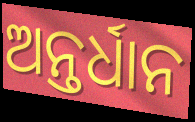
ଅନ୍ତର୍ଧାନ